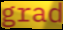
grad